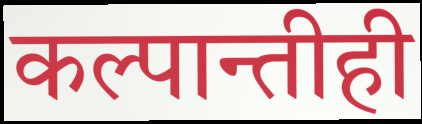
कल्पान्तीही